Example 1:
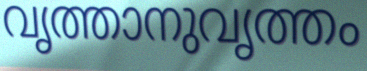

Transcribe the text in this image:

വൃത്താനുവൃത്തം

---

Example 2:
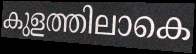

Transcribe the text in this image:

കുളത്തിലാകെ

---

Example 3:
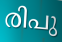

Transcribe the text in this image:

രിപു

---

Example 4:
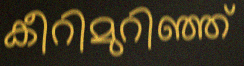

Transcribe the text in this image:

കീറിമുറിഞ്ഞ്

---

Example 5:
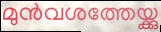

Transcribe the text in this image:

മുൻവശത്തേയ്ക്കു